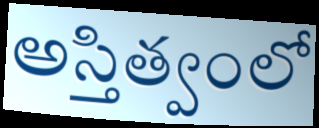
అస్తిత్వంలో